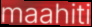
maahiti